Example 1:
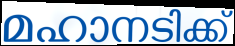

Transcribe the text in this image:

മഹാനടിക്ക്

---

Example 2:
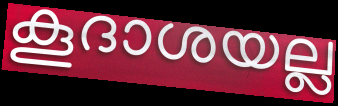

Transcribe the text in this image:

കൂദാശയല്ല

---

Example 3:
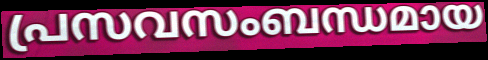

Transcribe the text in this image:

പ്രസവസംബന്ധമായ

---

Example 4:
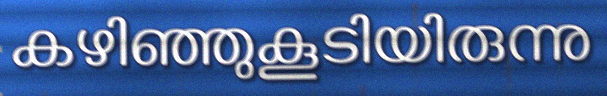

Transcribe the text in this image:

കഴിഞ്ഞുകൂടിയിരുന്നു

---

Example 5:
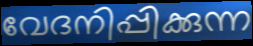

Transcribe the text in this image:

വേദനിപ്പിക്കുന്ന